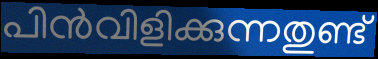
പിൻവിളിക്കുന്നതുണ്ട്